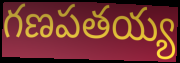
గణపతయ్య